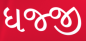
ધજ્જી